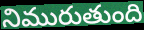
నిమురుతుంది